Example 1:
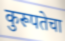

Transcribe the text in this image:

कुरूपतेचा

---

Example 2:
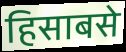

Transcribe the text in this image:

हिसाबसे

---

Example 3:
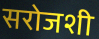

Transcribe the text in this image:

सरोजशी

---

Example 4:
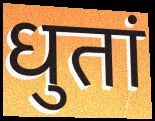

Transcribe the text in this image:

धुतां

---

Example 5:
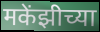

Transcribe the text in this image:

मकेंझीच्या